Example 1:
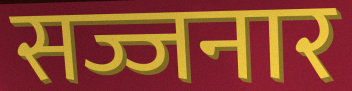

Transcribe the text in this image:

सज्जनार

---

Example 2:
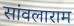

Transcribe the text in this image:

सांवलाराम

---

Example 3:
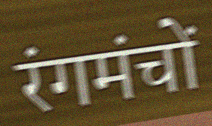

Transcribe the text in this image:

रंगमंचों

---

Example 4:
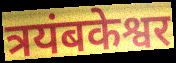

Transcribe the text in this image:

त्रयंबकेश्वर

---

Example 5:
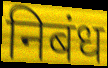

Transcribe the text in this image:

निबंध